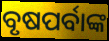
ବୃଷପର୍ବାଙ୍କ